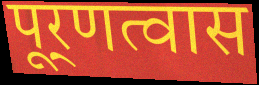
पूर्णत्वास